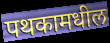
पथकामधील